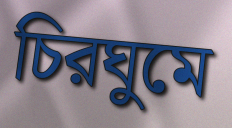
চিরঘুমে